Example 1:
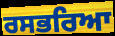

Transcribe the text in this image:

ਰਸਭਰਿਆ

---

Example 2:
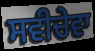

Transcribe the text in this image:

ਸਵੀਚੇਵਾ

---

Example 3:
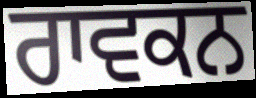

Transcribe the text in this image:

ਰਾਵਕਨ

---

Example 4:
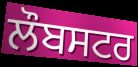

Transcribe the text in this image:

ਲੌਬਸਟਰ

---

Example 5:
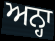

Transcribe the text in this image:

ਅਨ੍ਹਾ